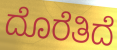
ದೊರೆತಿದೆ